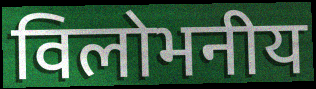
विलोभनीय